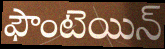
ఫౌంటెయిన్